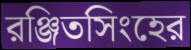
রঞ্জিতসিংহের